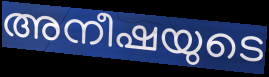
അനീഷയുടെ